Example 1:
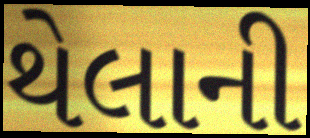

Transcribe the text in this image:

થેલાની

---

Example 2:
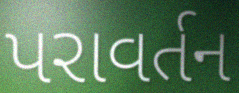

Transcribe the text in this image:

પરાવર્તન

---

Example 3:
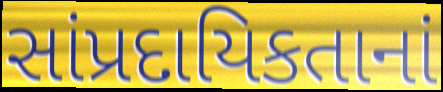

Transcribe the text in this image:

સાંપ્રદાયિકતાનાં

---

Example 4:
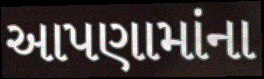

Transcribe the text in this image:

આપણામાંના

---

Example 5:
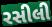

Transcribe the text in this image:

રસીલી